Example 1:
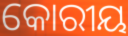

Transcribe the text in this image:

କୋରୀୟ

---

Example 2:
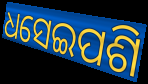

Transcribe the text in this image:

ଧସେଇପଶି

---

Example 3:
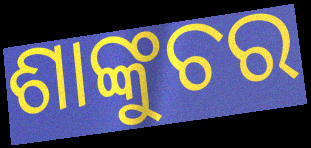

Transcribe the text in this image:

ଶାଙ୍କୁଚର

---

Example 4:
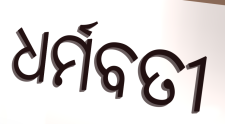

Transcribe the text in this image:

ଧର୍ମବତୀ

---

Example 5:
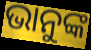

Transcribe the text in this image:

ଭାନୁଙ୍କ